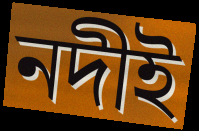
নদীই